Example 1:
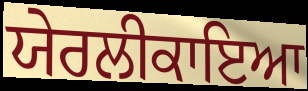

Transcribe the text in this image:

ਯੇਰਲੀਕਾਇਆ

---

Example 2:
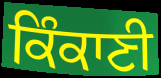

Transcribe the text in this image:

ਕਿੰਕਾਣੀ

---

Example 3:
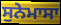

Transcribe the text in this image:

ਸੁਨੇਮਾਸਾ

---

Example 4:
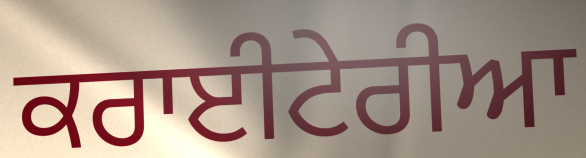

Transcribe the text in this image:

ਕਰਾਈਟੇਰੀਆ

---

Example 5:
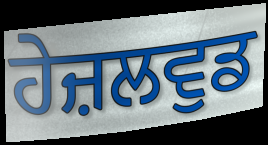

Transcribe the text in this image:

ਹੇਜ਼ਲਵੁਡ